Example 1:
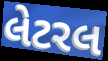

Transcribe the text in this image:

લેટરલ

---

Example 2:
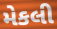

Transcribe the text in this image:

મેકલી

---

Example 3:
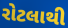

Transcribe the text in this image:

રોટલાથી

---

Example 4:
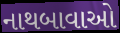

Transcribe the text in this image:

નાથબાવાઓ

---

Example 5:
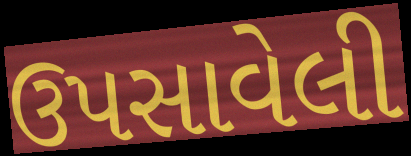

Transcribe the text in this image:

ઉપસાવેલી